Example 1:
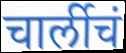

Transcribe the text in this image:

चार्लीचं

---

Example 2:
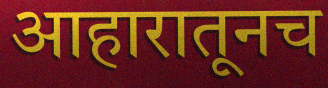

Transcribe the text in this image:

आहारातूनच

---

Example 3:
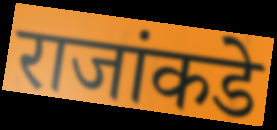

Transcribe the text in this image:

राजांकडे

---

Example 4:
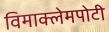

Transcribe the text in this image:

विमाक्लेमपोटी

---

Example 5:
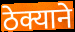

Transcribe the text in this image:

ठेक्याने